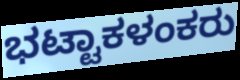
ಭಟ್ಟಾಕಳಂಕರು